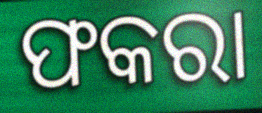
ଫକରା